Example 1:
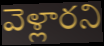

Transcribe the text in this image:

వెళ్లారని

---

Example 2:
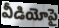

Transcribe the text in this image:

వీడియోపై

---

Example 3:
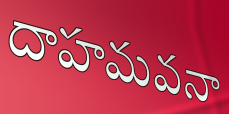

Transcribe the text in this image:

దాహమవనా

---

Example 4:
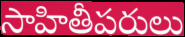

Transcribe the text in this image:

సాహితీపరులు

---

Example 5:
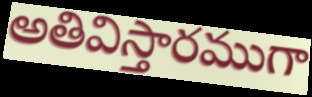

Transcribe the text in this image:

అతివిస్తారముగా